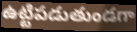
ఉట్టిపడుతుండగా